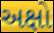
અક્ષો